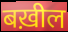
बख़ील